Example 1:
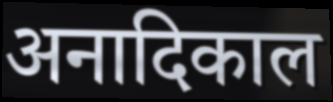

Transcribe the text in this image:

अनादिकाल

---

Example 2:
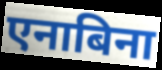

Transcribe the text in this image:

एनाबिना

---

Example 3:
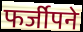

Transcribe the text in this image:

फर्जीपने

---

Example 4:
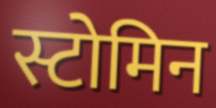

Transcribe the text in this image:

स्टोमिन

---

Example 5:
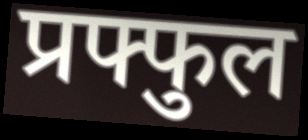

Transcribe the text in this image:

प्रफ्फुल